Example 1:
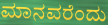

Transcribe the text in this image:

ಮಾನವರೆಂದು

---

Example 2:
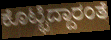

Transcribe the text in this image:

ಕೊಟ್ಟಿದ್ದಾರಂತೆ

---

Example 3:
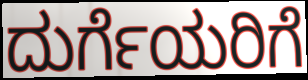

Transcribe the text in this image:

ದುರ್ಗೆಯರಿಗೆ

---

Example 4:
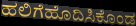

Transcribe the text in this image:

ಹಲಿಗೆಹೊದಿಸಿಕೊಂಡ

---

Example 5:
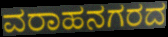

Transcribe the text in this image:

ವರಾಹನಗರದ